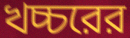
খচ্চরের